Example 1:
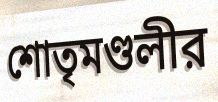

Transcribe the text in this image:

শোতৃমণ্ডলীর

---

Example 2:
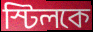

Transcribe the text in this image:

স্টিলকে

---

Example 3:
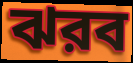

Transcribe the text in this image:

ঝরব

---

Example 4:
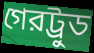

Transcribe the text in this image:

গেরট্রুড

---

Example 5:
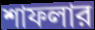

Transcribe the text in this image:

শাফলার